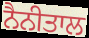
ਨੈਨੀਤਾਲ